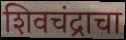
शिवचंद्राचा